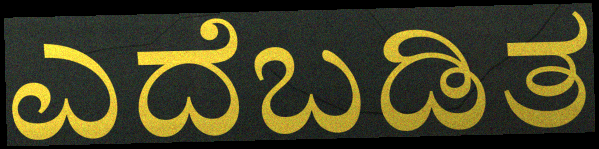
ಎದೆಬಡಿತ